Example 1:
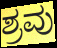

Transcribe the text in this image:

ಶ್ರವು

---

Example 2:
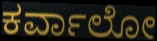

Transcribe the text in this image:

ಕರ್ವಾಲೋ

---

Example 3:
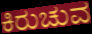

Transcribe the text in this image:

ಕಿರುಚುವ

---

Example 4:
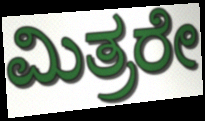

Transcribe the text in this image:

ಮಿತ್ರರೇ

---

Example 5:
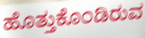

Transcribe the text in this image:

ಹೊತ್ತುಕೊಂಡಿರುವ